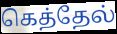
கெத்தேல்